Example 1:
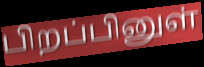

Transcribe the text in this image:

பிறப்பினுள்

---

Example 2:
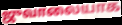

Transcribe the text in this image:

ஜுவாலையாக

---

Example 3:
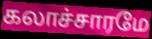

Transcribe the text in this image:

கலாச்சாரமே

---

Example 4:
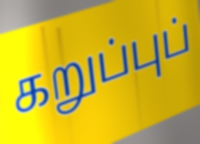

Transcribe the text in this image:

கறுப்புப்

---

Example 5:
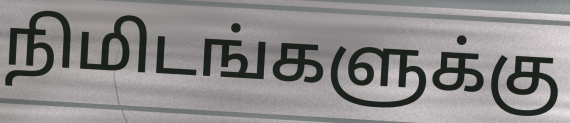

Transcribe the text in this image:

நிமிடங்களுக்கு